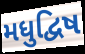
મધુદ્વિષ